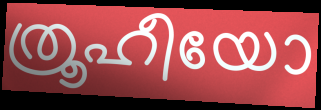
ത്രൂഹീയോ